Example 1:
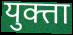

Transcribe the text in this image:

युक्ता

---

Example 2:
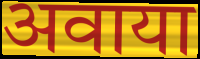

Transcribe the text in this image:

अवाया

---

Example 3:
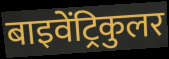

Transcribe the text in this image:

बाइवेंट्रिकुलर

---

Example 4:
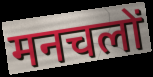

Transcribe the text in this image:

मनचलों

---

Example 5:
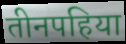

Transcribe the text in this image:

तीनपहिया